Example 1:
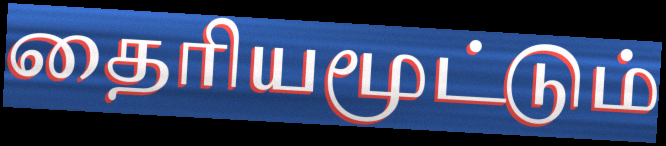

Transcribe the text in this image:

தைரியமூட்டும்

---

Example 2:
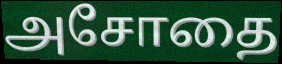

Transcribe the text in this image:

அசோதை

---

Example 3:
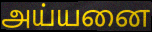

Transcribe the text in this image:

அய்யனை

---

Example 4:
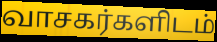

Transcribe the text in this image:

வாசகர்களிடம்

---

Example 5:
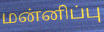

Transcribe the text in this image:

மன்னிப்பு